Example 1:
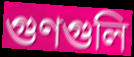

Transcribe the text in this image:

গুণগুলি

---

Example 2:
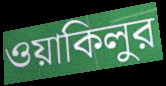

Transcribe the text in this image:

ওয়াকিলুর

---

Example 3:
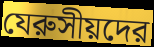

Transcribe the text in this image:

যেরুসীয়দের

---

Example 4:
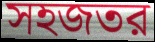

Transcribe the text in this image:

সহজতর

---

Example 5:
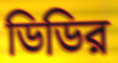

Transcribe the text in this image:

ডিডির